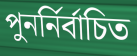
পুনর্নির্বাচিত